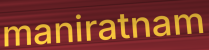
maniratnam